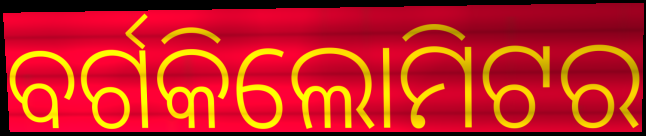
ବର୍ଗକିଲୋମିଟର